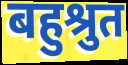
बहुश्रुत